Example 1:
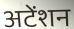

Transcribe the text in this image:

अटेंशन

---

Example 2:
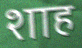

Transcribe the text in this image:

शाह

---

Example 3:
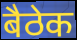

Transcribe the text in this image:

बैठेक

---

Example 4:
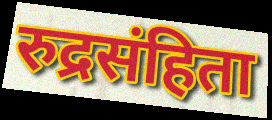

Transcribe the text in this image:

रुद्रसंहिता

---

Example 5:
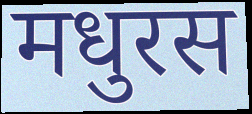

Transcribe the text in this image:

मधुरस